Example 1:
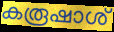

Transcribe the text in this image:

കരൂഷാശ്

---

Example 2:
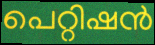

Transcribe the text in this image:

പെറ്റിഷൻ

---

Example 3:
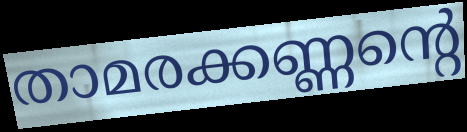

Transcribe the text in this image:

താമരക്കണ്ണന്റെ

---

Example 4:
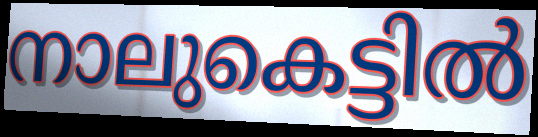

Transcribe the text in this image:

നാലുകെട്ടിൽ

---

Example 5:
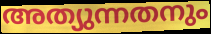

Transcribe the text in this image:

അത്യുന്നതനും